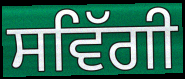
ਸਵਿੱਗੀ